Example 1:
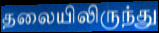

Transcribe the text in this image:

தலையிலிருந்து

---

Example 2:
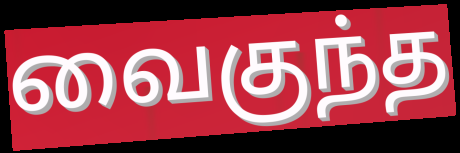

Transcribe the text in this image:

வைகுந்த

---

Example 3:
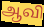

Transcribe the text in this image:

ஆவி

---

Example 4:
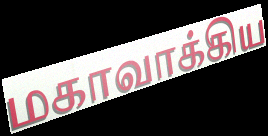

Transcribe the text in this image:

மகாவாக்கிய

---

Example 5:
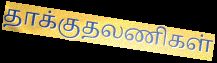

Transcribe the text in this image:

தாக்குதலணிகள்